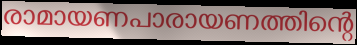
രാമായണപാരായണത്തിന്റെ